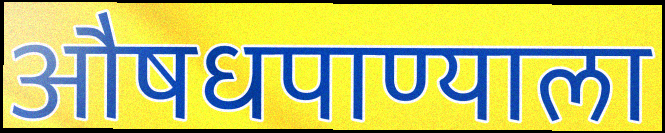
औषधपाण्याला